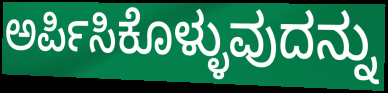
ಅರ್ಪಿಸಿಕೊಳ್ಳುವುದನ್ನು